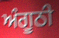
ਅੰਗੂਠੀ